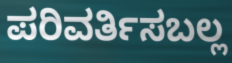
ಪರಿವರ್ತಿಸಬಲ್ಲ